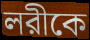
লরীকে